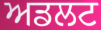
ਅਡਲਟ